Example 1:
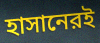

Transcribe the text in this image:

হাসানেরই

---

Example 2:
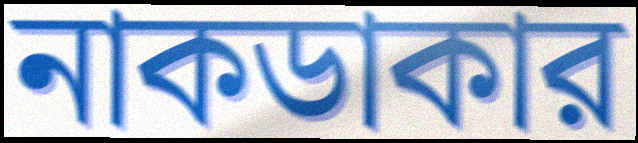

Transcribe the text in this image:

নাকডাকার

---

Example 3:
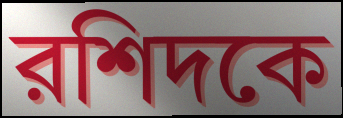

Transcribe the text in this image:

রশিদকে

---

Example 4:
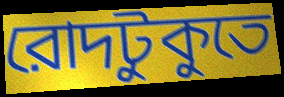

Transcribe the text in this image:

রোদটুকুতে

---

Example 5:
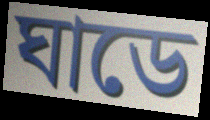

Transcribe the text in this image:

ঘাডে